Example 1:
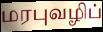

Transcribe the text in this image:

மரபுவழிப்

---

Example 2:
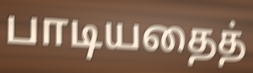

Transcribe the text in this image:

பாடியதைத்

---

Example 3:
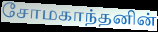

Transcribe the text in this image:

சோமகாந்தனின்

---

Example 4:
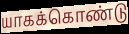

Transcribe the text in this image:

யாகக்கொண்டு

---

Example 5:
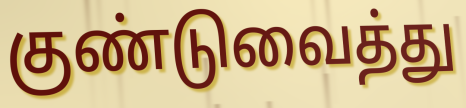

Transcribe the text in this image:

குண்டுவைத்து